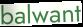
balwant